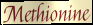
Methionine